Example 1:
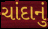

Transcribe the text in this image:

ચાંદાનું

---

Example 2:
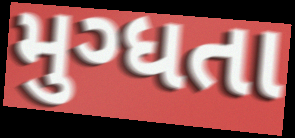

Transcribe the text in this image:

મુગ્ધતા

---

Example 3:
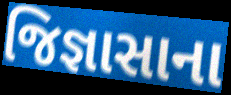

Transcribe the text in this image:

જિજ્ઞાસાના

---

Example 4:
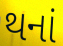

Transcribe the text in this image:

થનાં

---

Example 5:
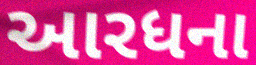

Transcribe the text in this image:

આરધના